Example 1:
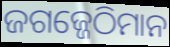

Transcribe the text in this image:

ଜଗଜ୍ଜେଠିମାନ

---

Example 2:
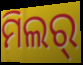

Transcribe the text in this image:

ମିଲର୍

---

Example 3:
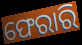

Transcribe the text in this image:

ଫେରାରି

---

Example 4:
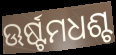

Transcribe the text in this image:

ଊର୍ଷ୍ଟମଧଶ୍ଚ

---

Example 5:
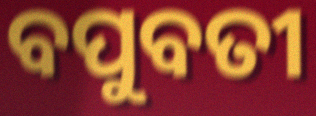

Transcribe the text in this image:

ବପୁବତୀ